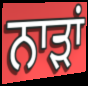
ਨਾੜਾਂ